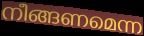
നീങ്ങണമെന്ന